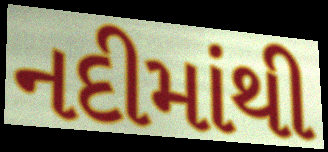
નદીમાંથી